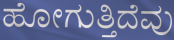
ಹೋಗುತ್ತಿದೆವು